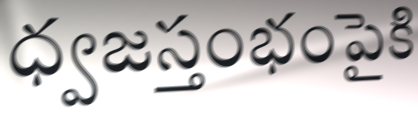
ధ్వజస్తంభంపైకి